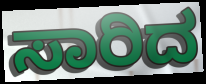
ಸಾರಿದ